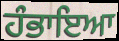
ਹੰਭਾਇਆ